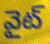
వైట్